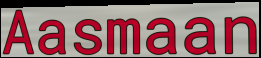
Aasmaan